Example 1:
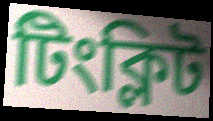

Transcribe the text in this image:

টিংক্লিট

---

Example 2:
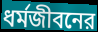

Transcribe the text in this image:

ধর্মজীবনের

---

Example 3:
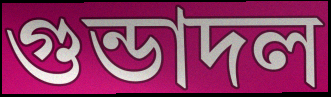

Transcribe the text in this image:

গুন্ডাদল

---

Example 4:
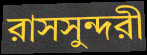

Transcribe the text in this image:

রাসসুন্দরী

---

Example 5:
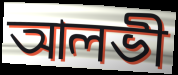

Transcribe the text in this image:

আলভী